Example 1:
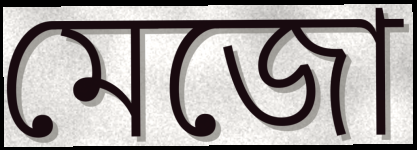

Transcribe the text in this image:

মেজো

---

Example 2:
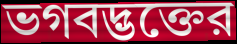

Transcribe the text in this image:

ভগবদ্ভক্তের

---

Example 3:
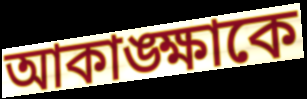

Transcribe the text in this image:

আকাঙ্ক্ষাকে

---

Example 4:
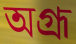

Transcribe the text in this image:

অগ্রূ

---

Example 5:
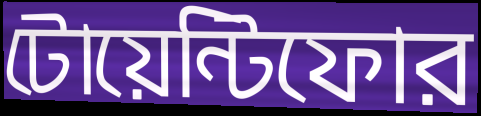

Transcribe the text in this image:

টোয়েন্টিফোর